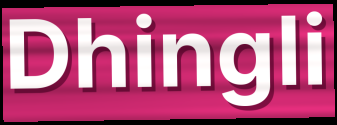
Dhingli